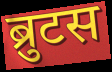
ब्रुटस